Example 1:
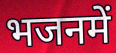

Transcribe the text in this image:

भजनमें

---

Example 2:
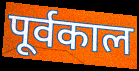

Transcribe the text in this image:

पूर्वकाल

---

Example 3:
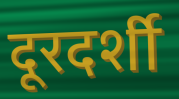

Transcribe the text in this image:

दूरदर्शी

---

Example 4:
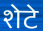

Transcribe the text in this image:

शेटे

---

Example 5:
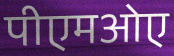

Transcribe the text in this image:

पीएमओए